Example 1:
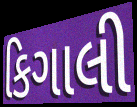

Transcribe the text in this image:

કિગાલી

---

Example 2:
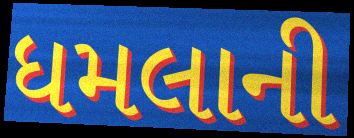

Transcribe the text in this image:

ધમલાની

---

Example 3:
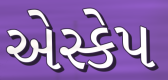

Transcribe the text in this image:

એસ્કેપ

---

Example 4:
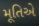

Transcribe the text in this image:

મૂતિએ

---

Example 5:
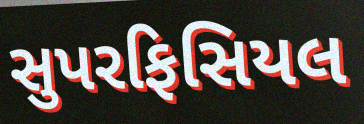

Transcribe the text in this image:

સુપરફિસિયલ